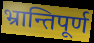
भ्रान्तिपूर्ण